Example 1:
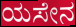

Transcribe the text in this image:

ಯಸೇನ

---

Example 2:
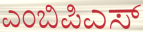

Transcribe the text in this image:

ಎಂಬಿಪಿಎಸ್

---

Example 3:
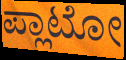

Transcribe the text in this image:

ಪ್ಲಾಟೋ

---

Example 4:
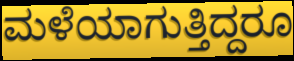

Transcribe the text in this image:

ಮಳೆಯಾಗುತ್ತಿದ್ದರೂ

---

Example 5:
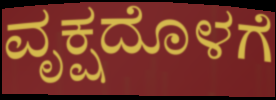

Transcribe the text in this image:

ವೃಕ್ಷದೊಳಗೆ